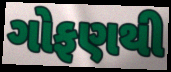
ગોફણથી